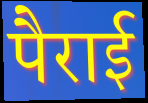
पैराई